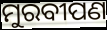
ମୁରବୀପଣ